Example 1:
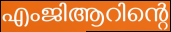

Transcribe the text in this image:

എംജിആറിന്റെ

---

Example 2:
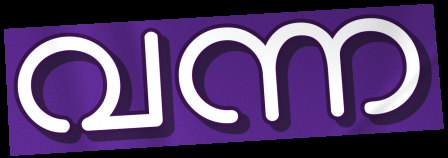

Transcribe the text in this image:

വന്ന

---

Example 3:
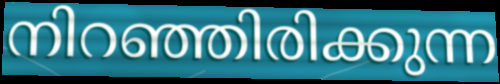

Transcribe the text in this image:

നിറഞ്ഞിരിക്കുന്ന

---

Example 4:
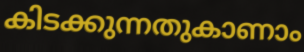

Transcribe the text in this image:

കിടക്കുന്നതുകാണാം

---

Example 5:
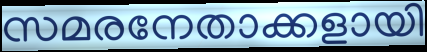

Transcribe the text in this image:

സമരനേതാക്കളായി